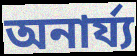
অনাৰ্য্য